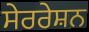
ਸੇਰਰੇਸ਼ਨ